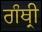
ਗੰਥ੍ਰੀ